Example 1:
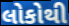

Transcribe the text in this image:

લોકોથી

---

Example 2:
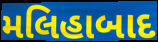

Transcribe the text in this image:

મલિહાબાદ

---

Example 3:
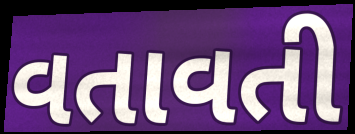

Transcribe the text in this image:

વતાવતી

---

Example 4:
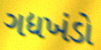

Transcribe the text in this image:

ગદ્યખંડો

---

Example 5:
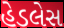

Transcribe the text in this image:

હેડલેસ